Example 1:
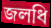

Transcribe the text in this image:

জলধি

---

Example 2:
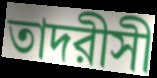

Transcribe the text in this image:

তাদরীসী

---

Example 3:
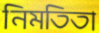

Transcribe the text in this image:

নিমতিতা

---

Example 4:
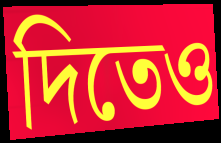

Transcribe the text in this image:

দিতেও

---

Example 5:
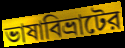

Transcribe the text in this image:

ভাষাবিভ্রাটের